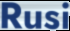
Rusi